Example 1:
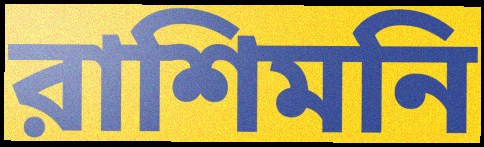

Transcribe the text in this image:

রাশিমনি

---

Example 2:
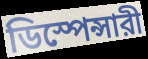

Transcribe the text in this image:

ডিস্পেন্সারী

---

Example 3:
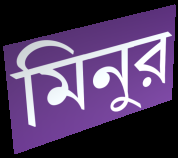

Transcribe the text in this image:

মিনুর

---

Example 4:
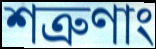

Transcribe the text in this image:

শত্রুণাং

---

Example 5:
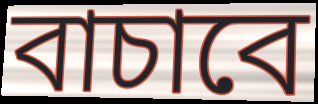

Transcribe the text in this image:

বাচাবে